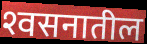
श्वसनातील